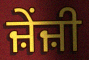
ਜ਼ੇਂਜ਼ੀ